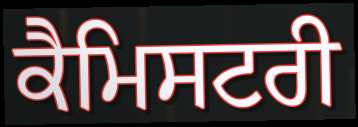
ਕੈਮਿਸਟਰੀ